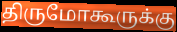
திருமோகூருக்கு